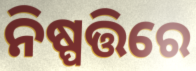
ନିଷ୍ପତ୍ତିରେ